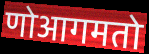
णोआगमतो